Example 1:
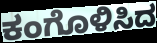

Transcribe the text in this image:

ಕಂಗೊಳಿಸಿದ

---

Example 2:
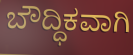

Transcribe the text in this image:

ಬೌದ್ಧಿಕವಾಗಿ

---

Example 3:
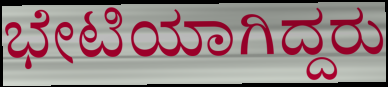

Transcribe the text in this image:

ಭೇಟಿಯಾಗಿದ್ದರು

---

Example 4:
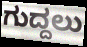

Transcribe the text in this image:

ಗುದ್ದಲು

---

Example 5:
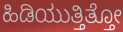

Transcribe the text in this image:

ಹಿಡಿಯುತ್ತಿತ್ತೋ